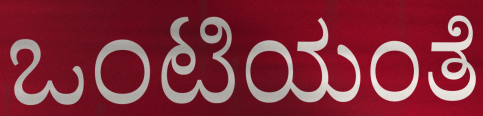
ಒಂಟಿಯಂತೆ